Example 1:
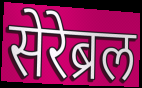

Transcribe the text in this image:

सेरेब्रल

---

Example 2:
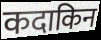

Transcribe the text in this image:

कदाकिन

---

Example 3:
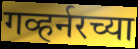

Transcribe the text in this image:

गव्हर्नरच्या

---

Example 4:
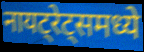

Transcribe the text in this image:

नायट्रेट्समध्ये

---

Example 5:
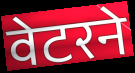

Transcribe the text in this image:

वेटरने